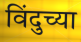
विंदुच्या